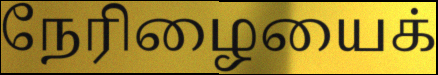
நேரிழையைக்